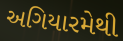
અગિયારમેથી